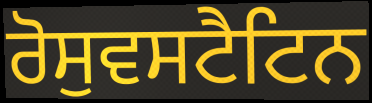
ਰੋਸੁਵਸਟੈਟਿਨ